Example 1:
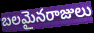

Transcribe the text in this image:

బలమైనరాజులు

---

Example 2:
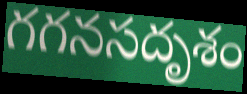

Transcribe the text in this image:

గగనసదృశం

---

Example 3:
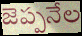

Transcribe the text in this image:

జెప్పనేల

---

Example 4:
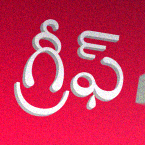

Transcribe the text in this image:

గ్రీఫ్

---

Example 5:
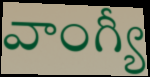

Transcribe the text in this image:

వాంగ్యీ